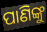
ପାଣିଙ୍କୁ